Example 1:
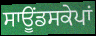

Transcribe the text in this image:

ਸਾਊਂਡਸਕੇਪਾਂ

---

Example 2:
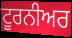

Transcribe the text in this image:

ਟੂਰਨੀਅਰ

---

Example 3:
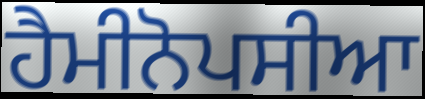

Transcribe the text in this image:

ਹੈਮੀਨੋਪਸੀਆ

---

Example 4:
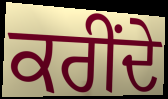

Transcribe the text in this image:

ਕਰੀਂਦੇ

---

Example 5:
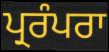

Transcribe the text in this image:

ਪ੍ਰਰੰਪਰਾ